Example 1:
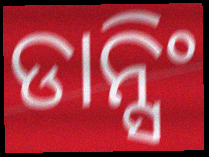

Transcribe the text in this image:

ଡାନ୍ସିଂ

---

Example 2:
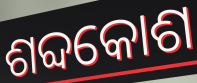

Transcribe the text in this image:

ଶବ୍ଦକୋଶ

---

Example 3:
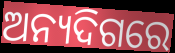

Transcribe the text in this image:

ଅନ୍ୟଦିଗରେ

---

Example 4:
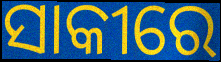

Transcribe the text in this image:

ସାକୀରେ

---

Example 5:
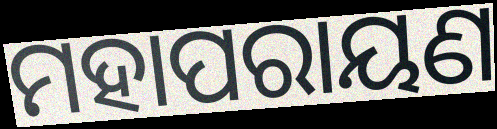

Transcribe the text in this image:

ମହାପରାୟଣ